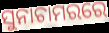
ସୁନାଚାମରରେ